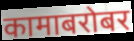
कामाबरोबर